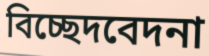
বিচ্ছেদবেদনা